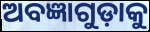
ଅବଜ୍ଞାଗୁଡ଼ାକୁ